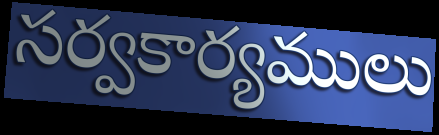
సర్వకార్యములు